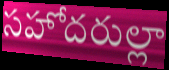
సహోదరుల్లా